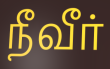
நீவீர்